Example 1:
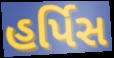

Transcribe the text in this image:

હર્પિસ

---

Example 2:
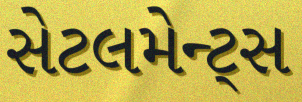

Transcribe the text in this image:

સેટલમેન્ટ્સ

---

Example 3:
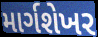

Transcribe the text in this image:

માર્ગશેખર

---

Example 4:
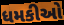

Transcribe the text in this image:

ધમકીઓ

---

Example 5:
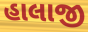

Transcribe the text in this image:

હાલાજી